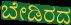
ಬೇಡಿರದ